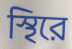
স্থিরে